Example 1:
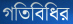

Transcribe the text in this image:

গতিবিধির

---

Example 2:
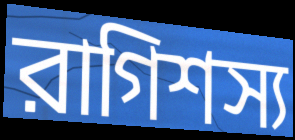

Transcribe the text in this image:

রাগিশস্য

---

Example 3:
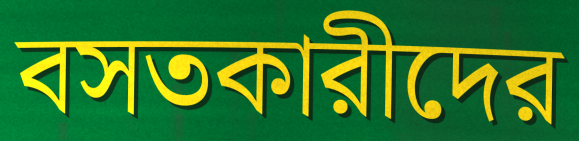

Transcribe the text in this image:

বসতকারীদের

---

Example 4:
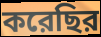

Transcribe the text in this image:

করেছির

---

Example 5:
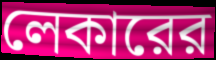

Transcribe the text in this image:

লেকারের